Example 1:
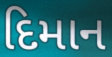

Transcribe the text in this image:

દિમાન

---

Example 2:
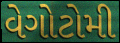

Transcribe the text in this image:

વેગોટોમી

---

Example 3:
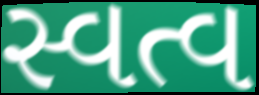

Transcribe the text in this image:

સ્વત્વ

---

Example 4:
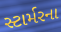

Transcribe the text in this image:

સ્ટાર્મરના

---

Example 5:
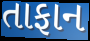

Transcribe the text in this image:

તાફાન